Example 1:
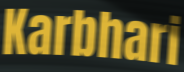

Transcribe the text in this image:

Karbhari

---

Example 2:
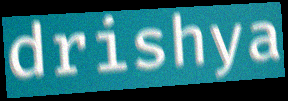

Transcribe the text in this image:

drishya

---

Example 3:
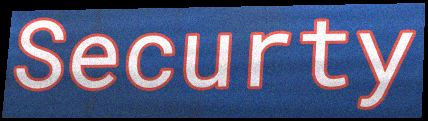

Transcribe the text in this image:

Securty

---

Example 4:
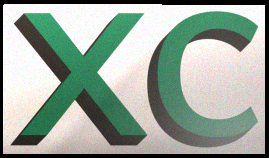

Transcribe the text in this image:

xc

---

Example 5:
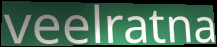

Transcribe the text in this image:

veelratna